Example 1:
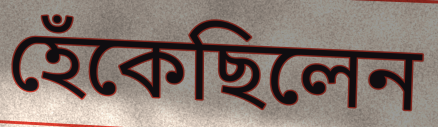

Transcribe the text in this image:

হেঁকেছিলেন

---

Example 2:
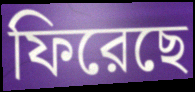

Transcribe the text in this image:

ফিরেছে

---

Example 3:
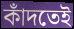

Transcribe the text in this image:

কাঁদতেই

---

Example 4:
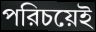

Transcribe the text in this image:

পরিচয়েই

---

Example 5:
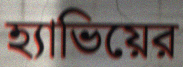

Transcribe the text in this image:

হ্যাভিয়ের